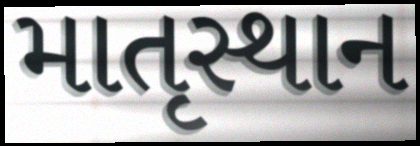
માતૃસ્થાન